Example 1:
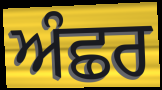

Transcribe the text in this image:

ਅੰਛਰ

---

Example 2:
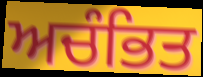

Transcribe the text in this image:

ਅਚੰਭਿਤ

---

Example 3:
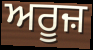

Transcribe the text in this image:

ਅਰੂਜ਼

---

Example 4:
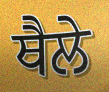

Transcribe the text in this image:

ਥੈਲੇ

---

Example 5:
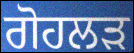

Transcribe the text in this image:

ਗੋਹਲੜ